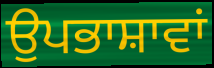
ਉਪਭਾਸ਼ਾਵਾਂ